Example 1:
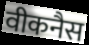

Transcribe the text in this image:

वीकनैस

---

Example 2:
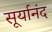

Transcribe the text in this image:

सूर्यानंद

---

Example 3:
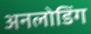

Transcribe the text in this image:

अनलोडिंग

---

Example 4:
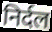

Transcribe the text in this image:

निर्दल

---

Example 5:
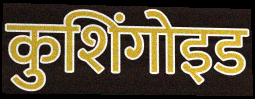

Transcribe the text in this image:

कुशिंगोइड